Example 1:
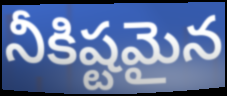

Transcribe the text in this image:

నీకిష్టమైన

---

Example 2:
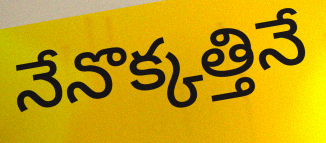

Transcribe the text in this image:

నేనొక్కత్తినే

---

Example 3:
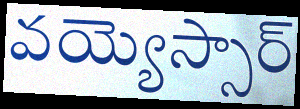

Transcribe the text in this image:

వయ్యెస్సార్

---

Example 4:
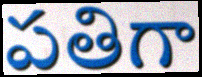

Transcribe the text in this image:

పతిగా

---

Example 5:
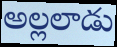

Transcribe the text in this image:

అల్లలాడు